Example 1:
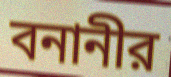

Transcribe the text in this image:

বনানীর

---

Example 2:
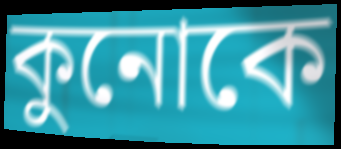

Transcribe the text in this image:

কুনোকে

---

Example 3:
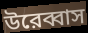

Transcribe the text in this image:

উরেব্বাস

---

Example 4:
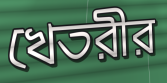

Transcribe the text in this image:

খেতরীর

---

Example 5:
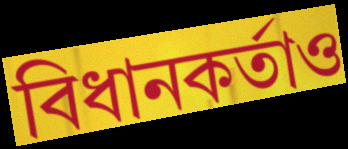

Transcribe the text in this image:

বিধানকর্তাও